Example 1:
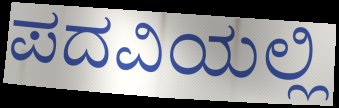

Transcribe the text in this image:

ಪದವಿಯಲ್ಲಿ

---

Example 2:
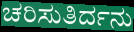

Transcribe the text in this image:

ಚರಿಸುತಿರ್ದನು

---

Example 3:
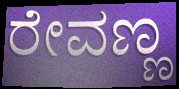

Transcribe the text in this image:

ರೇವಣ್ಣ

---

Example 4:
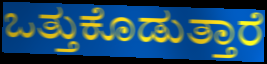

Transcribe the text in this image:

ಒತ್ತುಕೊಡುತ್ತಾರೆ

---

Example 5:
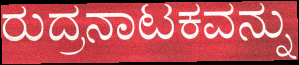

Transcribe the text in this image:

ರುದ್ರನಾಟಕವನ್ನು